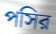
পসির